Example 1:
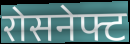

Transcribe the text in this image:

रोसनेफ्ट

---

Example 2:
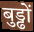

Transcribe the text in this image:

बुड्ढों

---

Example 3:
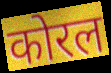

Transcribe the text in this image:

कोरल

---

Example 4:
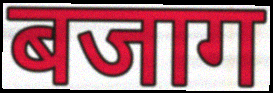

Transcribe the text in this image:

बजाग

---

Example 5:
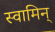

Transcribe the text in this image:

स्वामिन्